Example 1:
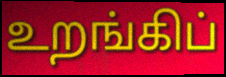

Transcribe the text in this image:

உறங்கிப்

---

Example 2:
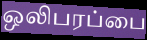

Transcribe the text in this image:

ஒலிபரப்பை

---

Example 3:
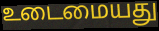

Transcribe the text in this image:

உடைமையது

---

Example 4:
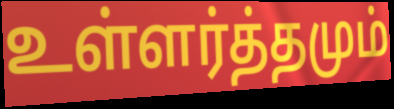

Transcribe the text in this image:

உள்ளர்த்தமும்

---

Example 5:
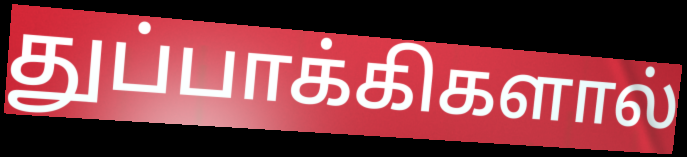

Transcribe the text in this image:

துப்பாக்கிகளால்